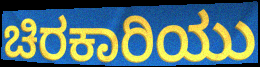
ಚಿರಕಾರಿಯು